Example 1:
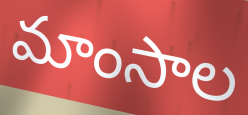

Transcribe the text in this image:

మాంసాల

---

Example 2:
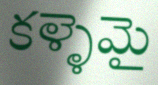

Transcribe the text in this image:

కళ్ళెమై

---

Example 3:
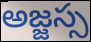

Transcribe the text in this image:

అజ్జస్స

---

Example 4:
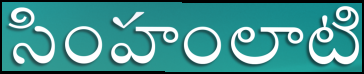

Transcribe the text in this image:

సింహంలాటి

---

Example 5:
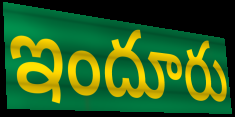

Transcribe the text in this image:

ఇందూరు